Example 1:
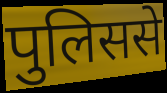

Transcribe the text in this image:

पुलिससे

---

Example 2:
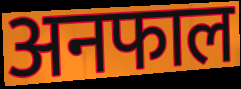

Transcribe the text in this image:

अनफाल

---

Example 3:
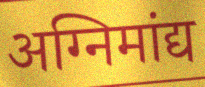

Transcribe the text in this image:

अग्निमांद्य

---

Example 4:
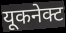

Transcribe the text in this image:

यूकनेक्ट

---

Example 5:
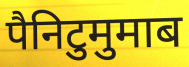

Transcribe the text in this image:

पैनिटुमुमाब